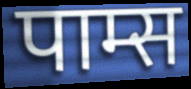
पाम्स